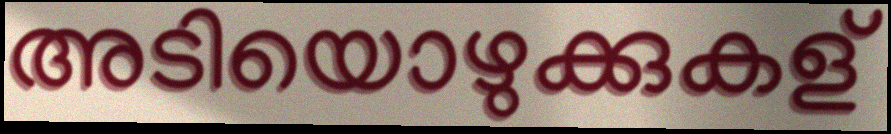
അടിയൊഴുക്കുകള്